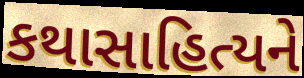
કથાસાહિત્યને